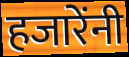
हजारेंनी